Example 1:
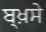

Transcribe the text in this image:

ਬ੍ਖ਼ਸੇ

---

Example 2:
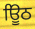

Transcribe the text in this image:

ਊਿਠ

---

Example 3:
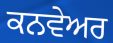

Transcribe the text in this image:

ਕਨਵੇਅਰ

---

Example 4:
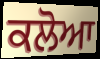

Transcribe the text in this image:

ਕਲੋਆ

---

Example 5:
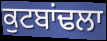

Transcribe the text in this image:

ਕੁਟਬਾਂਢਲਾ